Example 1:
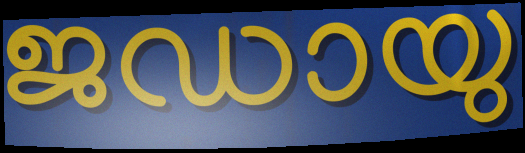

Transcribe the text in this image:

ജഡായു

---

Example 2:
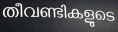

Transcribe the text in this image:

തീവണ്ടികളുടെ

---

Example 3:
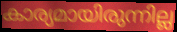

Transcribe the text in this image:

കാര്യമായിരുന്നില്ല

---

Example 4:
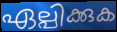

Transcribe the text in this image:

ഏല്പിക്കുക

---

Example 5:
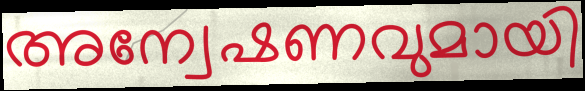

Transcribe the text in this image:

അന്വേഷണവുമായി